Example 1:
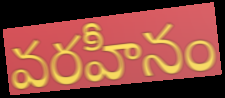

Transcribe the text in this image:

వరహీనం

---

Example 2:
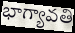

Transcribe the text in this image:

భాగ్యావతి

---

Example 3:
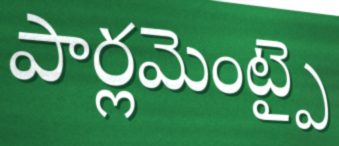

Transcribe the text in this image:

పార్లమెంట్పై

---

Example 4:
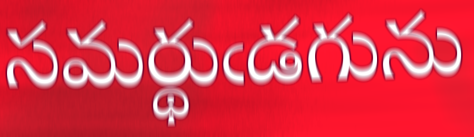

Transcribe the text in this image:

సమర్థుఁడగును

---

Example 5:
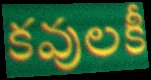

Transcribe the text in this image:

కవులకీ